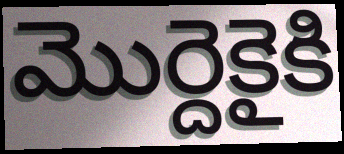
మొర్దెకైకి